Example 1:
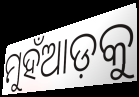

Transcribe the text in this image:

ମୁହଁଆଡ଼କୁ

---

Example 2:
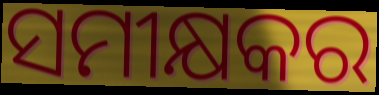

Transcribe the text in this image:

ସମୀକ୍ଷକର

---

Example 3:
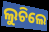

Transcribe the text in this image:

ଲୁଚିଲେ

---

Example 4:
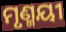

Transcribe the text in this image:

ମୃଣ୍ମୟୀ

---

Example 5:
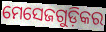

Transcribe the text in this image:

ମେସେଜଗୁଡ଼ିକର